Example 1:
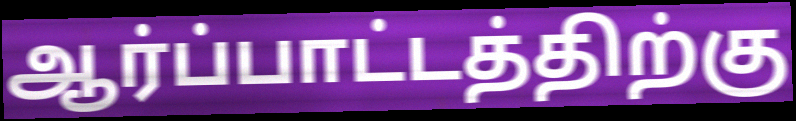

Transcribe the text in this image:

ஆர்ப்பாட்டத்திற்கு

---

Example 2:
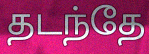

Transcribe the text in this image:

தடந்தே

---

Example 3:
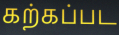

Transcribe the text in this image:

கற்கப்பட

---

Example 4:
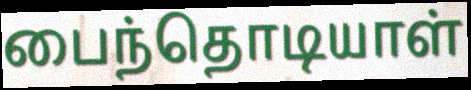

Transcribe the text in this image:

பைந்தொடியாள்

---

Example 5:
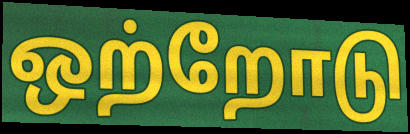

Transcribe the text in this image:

ஒற்றோடு